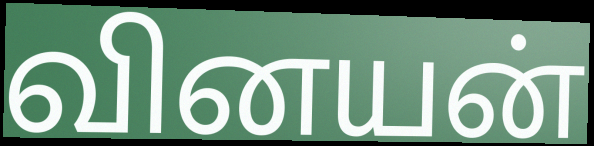
வினயன்